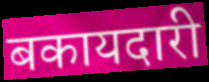
बकायदारी